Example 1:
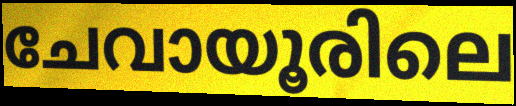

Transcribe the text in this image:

ചേവായൂരിലെ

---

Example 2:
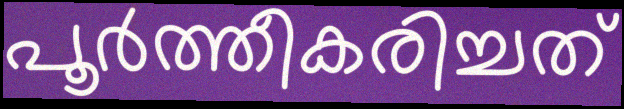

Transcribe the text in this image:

പൂർത്തീകരിച്ചത്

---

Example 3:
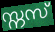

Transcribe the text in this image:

സ്നസ്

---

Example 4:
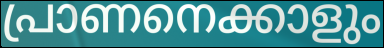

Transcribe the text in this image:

പ്രാണനെക്കാളും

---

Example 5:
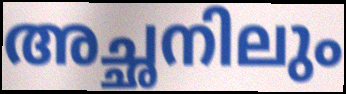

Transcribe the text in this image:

അച്ഛനിലും